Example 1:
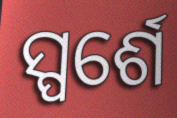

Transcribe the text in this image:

ସ୍ପର୍ଶେ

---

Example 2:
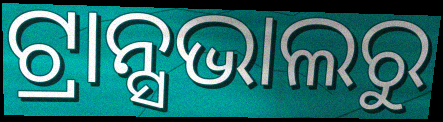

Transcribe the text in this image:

ଟ୍ରାନ୍ସଭାଲରୁ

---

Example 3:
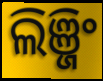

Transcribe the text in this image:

ଲିଞ୍ଜିଂ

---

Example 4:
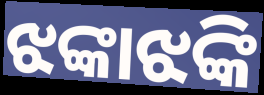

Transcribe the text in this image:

ଝଙ୍କାଝଙ୍କି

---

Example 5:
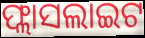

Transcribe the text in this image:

ଫ୍ଲାସଲାଇଟ